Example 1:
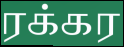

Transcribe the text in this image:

ரக்கர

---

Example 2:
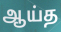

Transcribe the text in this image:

ஆய்த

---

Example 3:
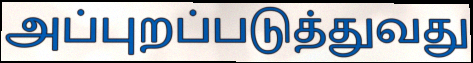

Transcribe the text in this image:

அப்புறப்படுத்துவது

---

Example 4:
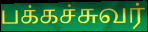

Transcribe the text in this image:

பக்கச்சுவர்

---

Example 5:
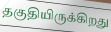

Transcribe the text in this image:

தகுதியிருக்கிறது